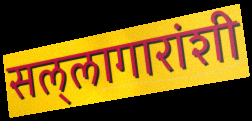
सल्लागारांशी